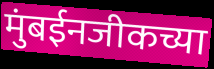
मुंबईनजीकच्या